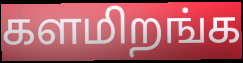
களமிறங்க